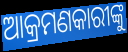
ଆକ୍ରମଣକାରୀଙ୍କୁ